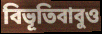
বিভূতিবাবুও